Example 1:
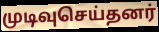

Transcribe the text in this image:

முடிவுசெய்தனர்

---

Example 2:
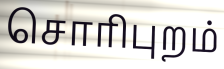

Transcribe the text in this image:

சொரிபுறம்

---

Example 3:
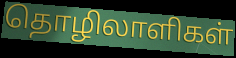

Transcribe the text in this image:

தொழிலாளிகள்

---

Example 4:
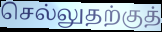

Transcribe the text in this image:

செல்லுதற்குத்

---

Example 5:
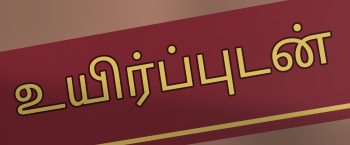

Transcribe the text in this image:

உயிர்ப்புடன்